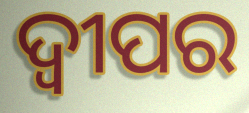
ଦ୍ଵୀପର